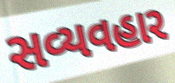
સવ્યવહાર